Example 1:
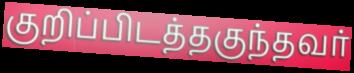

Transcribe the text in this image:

குறிப்பிடத்தகுந்தவர்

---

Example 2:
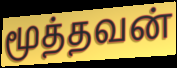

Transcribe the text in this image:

மூத்தவன்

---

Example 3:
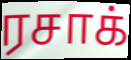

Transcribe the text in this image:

ரசாக்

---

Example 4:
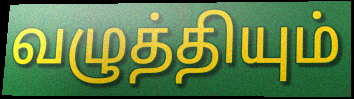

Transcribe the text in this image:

வழுத்தியும்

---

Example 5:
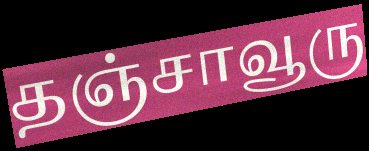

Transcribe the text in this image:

தஞ்சாவூரு